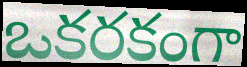
ఒకరకంగా